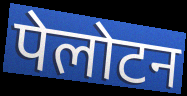
पेलोटन